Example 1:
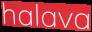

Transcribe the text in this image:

halava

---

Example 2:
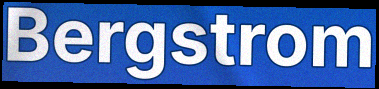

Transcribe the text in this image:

Bergstrom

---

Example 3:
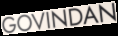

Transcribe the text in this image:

GOVINDAN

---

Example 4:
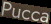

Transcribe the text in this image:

Pucca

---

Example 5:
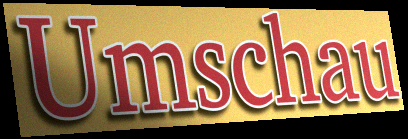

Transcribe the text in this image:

Umschau